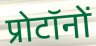
प्रोटॉनों